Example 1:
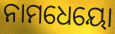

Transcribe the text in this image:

ନାମଧେୟୋ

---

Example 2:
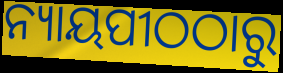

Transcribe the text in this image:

ନ୍ୟାୟପୀଠଠାରୁ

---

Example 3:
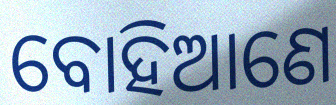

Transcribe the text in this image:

ବୋହିଆଣେ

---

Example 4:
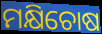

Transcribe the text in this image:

ମକ୍ଷିଚୋଷ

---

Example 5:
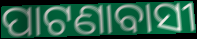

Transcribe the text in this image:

ପାଟଣାବାସୀ